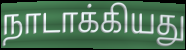
நாடாக்கியது